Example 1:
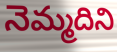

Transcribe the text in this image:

నెమ్మదిని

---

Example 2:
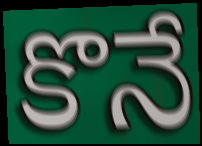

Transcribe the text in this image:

కొనే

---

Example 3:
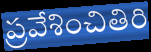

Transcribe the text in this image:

ప్రవేశించితిరి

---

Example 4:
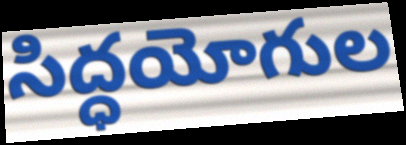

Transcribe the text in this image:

సిద్ధయోగుల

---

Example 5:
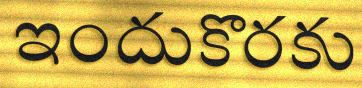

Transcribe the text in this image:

ఇందుకొరకు